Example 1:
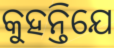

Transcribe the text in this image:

କୁହନ୍ତିଯେ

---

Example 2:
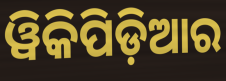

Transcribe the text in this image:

ୱିକିପିଡ଼ିଆର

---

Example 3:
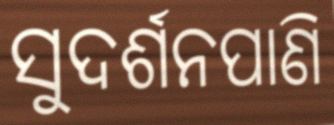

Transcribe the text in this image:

ସୁଦର୍ଶନପାଣି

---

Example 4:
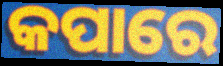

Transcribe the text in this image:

କପାରେ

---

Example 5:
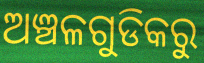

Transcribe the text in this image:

ଅଞ୍ଚଳଗୁଡିକରୁ